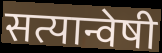
सत्यान्वेषी